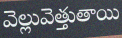
వెల్లువెత్తుతాయి